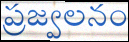
ప్రజ్వలనం